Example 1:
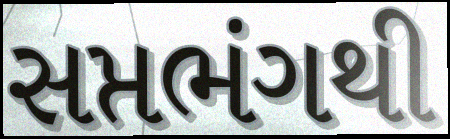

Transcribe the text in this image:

સપ્તભંગથી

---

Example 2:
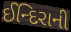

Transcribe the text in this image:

ઈન્દિરાની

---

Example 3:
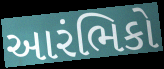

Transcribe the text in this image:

આરંભિકો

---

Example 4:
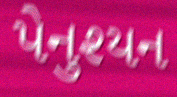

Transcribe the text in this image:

પેનુશ્યન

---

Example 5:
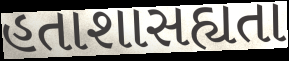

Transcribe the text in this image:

હતાશાસહ્યતા